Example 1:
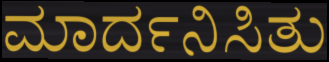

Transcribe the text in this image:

ಮಾರ್ದನಿಸಿತು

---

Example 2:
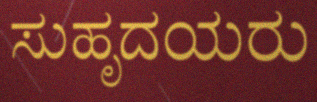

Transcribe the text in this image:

ಸುಹೃದಯರು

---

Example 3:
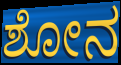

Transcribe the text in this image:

ಶೋನ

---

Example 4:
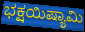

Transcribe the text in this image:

ಭಕ್ಷಯಿಷ್ಯಾಮಿ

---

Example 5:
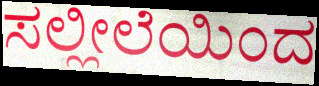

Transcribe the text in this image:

ಸಲ್ಲೀಲೆಯಿಂದ